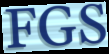
FGS